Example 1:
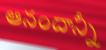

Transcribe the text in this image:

ఆనందాన్నీ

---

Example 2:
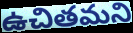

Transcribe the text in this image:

ఉచితమని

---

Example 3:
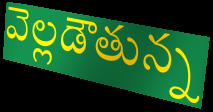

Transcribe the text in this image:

వెల్లడౌతున్న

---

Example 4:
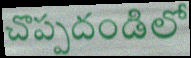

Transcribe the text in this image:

చొప్పదండిలో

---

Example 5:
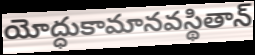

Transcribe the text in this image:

యోద్ధుకామానవస్థితాన్